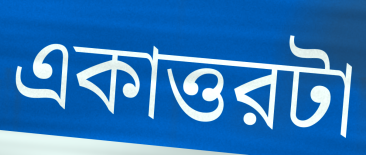
একাত্তরটা